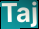
Taj